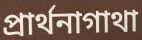
প্রার্থনাগাথা